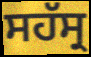
ਸਹੱਸ੍ਰ